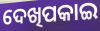
ଦେଖିପକାଇ